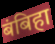
बंबिहा